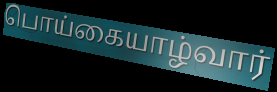
பொய்கையாழ்வார்